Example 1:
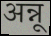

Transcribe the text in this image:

अन्नू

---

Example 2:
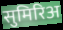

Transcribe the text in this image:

सुमिरिअ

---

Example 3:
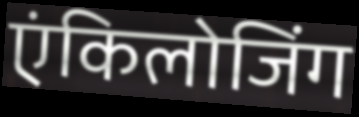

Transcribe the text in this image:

एंकिलोजिंग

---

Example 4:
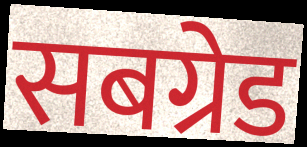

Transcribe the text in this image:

सबग्रेड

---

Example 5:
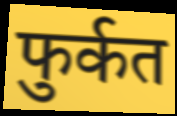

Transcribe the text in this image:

फुर्कत